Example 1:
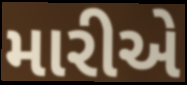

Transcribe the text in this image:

મારીએ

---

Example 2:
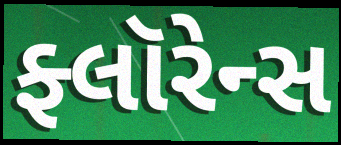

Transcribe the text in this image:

ફ્લૉરેન્સ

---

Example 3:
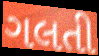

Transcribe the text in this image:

ગલતી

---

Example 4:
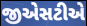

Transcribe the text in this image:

જીએસટીએ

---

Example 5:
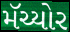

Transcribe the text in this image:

મૅચ્યોર